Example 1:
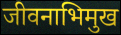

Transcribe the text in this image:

जीवनाभिमुख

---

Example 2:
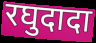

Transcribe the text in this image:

रघुदादा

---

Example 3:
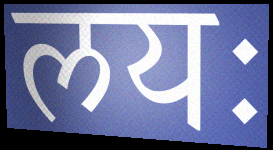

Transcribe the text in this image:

लयः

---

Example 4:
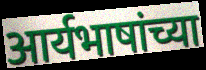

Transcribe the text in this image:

आर्यभाषांच्या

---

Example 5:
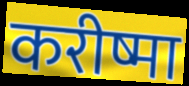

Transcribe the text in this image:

करीष्मा